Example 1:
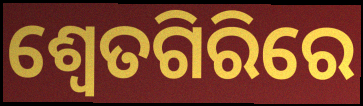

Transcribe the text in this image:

ଶ୍ୱେତଗିରିରେ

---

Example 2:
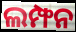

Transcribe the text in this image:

ଲମ୍ଫନ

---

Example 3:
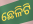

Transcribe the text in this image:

ଛେଳିଟି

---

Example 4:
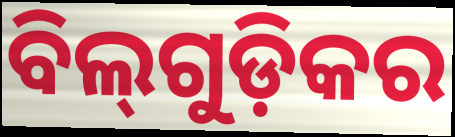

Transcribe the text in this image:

ବିଲ୍‌ଗୁଡ଼ିକର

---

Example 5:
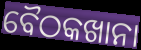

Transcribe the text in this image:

ବୈଠକଖାନା